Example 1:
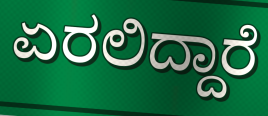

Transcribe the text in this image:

ಏರಲಿದ್ದಾರೆ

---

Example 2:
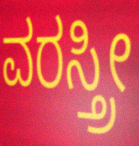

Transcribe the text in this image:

ವರಸ್ತ್ರೀ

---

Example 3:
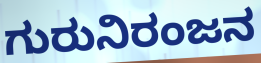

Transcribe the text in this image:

ಗುರುನಿರಂಜನ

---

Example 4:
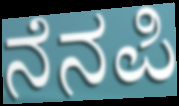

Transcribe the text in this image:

ನೆನಪಿ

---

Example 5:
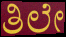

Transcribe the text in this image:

ತಿಲೇ